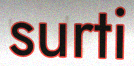
surti